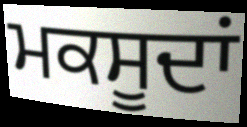
ਮਕਸੂਦਾਂ